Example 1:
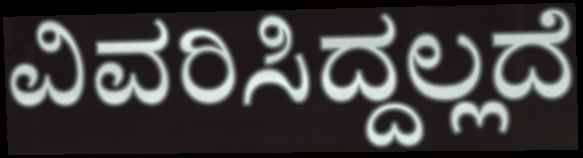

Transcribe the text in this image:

ವಿವರಿಸಿದ್ದಲ್ಲದೆ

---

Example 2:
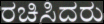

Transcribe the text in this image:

ರಚಿಸಿದರು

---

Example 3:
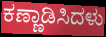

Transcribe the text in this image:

ಕಣ್ಣಾಡಿಸಿದಳು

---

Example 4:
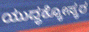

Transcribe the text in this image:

ಯುದ್ಧಕ್ಕೋಸ್ಕರ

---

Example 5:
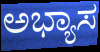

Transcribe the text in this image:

ಅಭ್ಯಾಸ